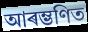
আৰম্ভণিত